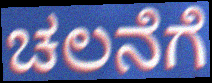
ಚಲನೆಗೆ